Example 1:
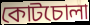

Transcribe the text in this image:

কোটচোলা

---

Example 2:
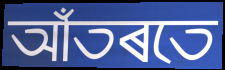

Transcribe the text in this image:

আঁতৰতে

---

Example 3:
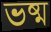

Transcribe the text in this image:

ভষ্ম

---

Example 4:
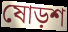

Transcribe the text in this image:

ষোড়শ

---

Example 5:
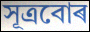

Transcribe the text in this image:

সূত্ৰবোৰ